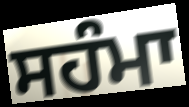
ਸਹੰਮਾ